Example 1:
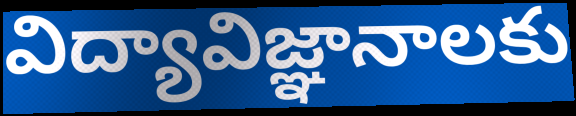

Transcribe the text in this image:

విద్యావిజ్ఞానాలకు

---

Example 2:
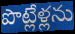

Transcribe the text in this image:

పొట్లేళ్లను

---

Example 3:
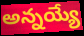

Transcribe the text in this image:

అన్నయ్యే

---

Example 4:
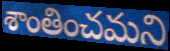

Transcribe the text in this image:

శాంతించమని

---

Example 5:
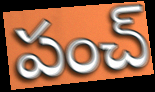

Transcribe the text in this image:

పంచ్